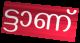
ട്ടാണ്